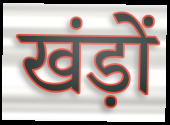
खंड़ों